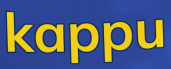
kappu